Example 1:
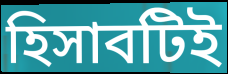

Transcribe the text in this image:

হিসাবটিই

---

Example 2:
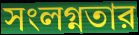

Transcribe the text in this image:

সংলগ্নতার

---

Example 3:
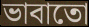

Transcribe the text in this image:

ভাবাতো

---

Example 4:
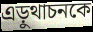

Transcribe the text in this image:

এড়ুথাচনকে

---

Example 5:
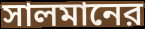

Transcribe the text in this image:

সালমানের